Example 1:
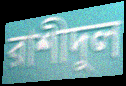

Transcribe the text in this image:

রাশীদুল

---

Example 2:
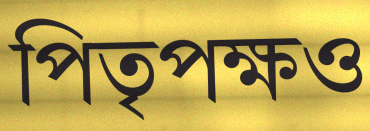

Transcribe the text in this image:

পিতৃপক্ষও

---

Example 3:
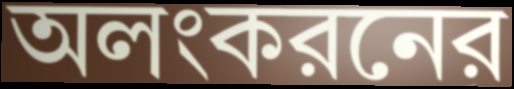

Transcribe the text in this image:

অলংকরনের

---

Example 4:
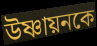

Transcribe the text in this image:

উষ্ণায়নকে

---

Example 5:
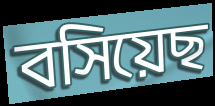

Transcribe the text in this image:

বসিয়েছ